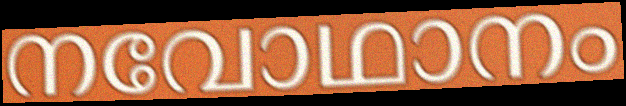
നവോഥാനം